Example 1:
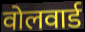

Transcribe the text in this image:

वोलवार्ड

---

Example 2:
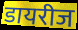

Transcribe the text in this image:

डायरीज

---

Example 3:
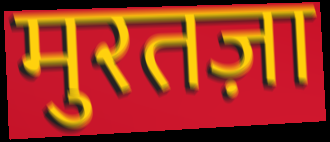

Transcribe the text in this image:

मुरतज़ा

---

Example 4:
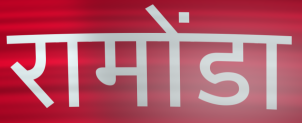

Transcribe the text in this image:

रामोंडा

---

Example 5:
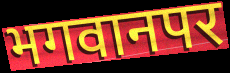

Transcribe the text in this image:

भगवानपर